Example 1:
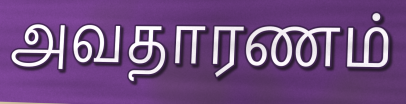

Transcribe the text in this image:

அவதாரணம்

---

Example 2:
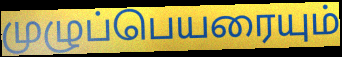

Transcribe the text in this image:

முழுப்பெயரையும்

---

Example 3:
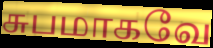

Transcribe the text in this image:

சுபமாகவே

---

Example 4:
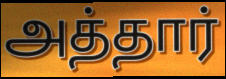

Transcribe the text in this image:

அத்தார்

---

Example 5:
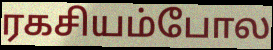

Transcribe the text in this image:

ரகசியம்போல